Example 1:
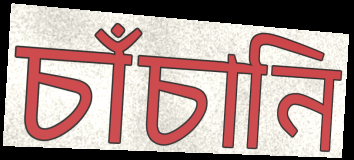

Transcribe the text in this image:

চাঁচানি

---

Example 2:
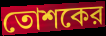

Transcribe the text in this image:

তোশকের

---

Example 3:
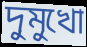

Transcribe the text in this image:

দুমুখো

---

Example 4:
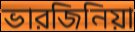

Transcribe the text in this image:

ভারজিনিয়া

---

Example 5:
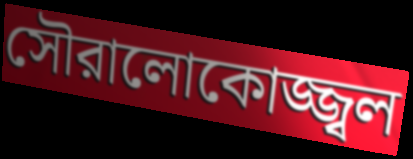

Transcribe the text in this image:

সৌরালোকোজ্জ্বল